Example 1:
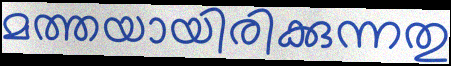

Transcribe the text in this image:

മത്തയായിരിക്കുന്നതു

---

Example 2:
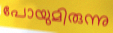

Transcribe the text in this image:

പോയുമിരുന്നു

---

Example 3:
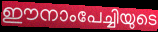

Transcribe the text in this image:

ഈനാംപേച്ചിയുടെ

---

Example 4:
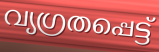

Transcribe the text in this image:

വ്യഗ്രതപ്പെട്ട്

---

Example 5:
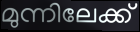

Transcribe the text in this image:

മുന്നിലേക്ക്